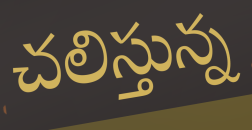
చలిస్తున్న